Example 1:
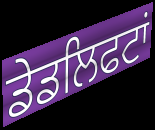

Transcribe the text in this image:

ਡੇਡਲਿਫਟਾਂ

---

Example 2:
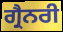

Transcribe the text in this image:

ਗ੍ਰੈਨਰੀ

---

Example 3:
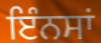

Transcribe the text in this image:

ਇੰਨਸਾਂ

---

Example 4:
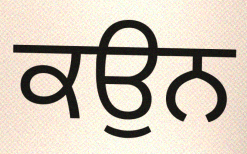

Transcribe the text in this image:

ਕਉਨ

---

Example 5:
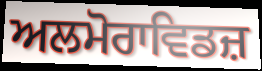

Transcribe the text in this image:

ਅਲਮੋਰਾਵਿਡਜ਼